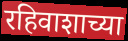
रहिवाशाच्या